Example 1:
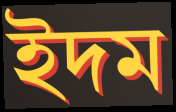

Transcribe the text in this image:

ইদম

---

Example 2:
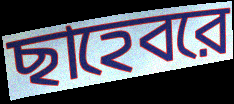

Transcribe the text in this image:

ছাহেবরে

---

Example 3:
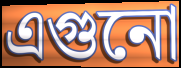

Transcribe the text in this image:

এগুনো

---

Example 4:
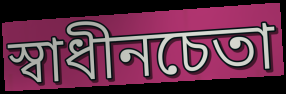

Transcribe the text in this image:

স্বাধীনচেতা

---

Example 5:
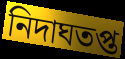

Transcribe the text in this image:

নিদাঘতপ্ত